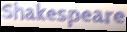
Shakespeare